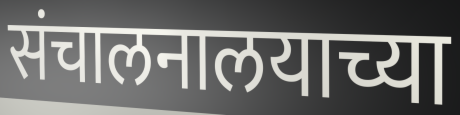
संचालनालयाच्या